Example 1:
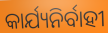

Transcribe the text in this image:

କାର୍ଯ୍ୟନିର୍ବାହୀ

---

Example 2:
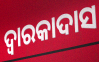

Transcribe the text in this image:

ଦ୍ୱାରକାଦାସ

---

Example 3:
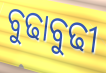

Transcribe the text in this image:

ବୁଢାବୁଢୀ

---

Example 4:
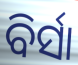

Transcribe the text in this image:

ବିର୍ସା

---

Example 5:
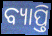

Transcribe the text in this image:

ବ୍ୟାପ୍ତି